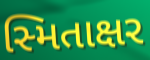
સ્મિતાક્ષર